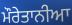
ਮੌਰੇਤਾਨੀਆ